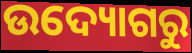
ଉଦ୍ୟୋଗରୁ